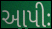
આપીઃ